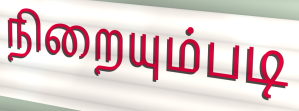
நிறையும்படி